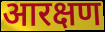
आरक्षण